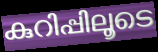
കുറിപ്പിലൂടെ